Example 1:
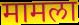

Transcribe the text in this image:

मामला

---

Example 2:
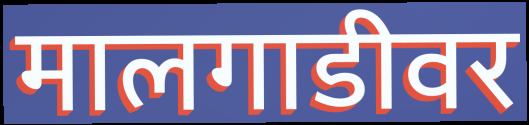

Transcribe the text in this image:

मालगाडीवर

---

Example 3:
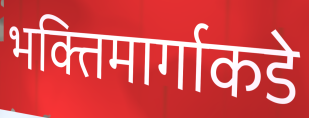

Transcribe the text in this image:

भक्तिमार्गाकडे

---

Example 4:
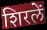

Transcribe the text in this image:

शिरलें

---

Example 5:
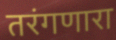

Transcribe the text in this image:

तरंगणारा